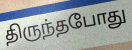
திருந்தபோது